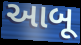
આબૂ